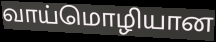
வாய்மொழியான